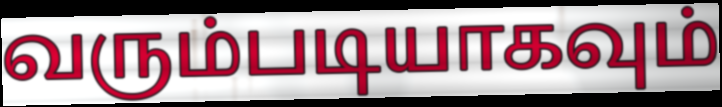
வரும்படியாகவும்